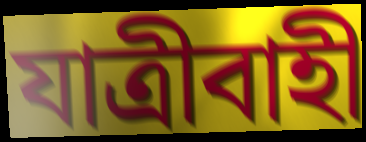
যাত্ৰীবাহী